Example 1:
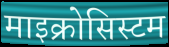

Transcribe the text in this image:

माइक्रोसिस्टम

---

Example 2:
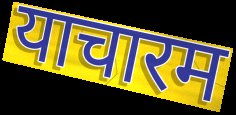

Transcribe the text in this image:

याचारम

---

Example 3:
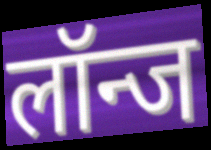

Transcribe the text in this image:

लॉन्ज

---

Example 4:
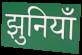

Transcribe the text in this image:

झुनियाँ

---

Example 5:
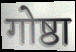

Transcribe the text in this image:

गोष्ठा